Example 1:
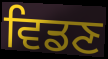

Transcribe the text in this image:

ਵਿਡਣ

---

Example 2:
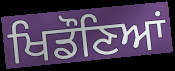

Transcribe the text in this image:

ਖਿਡੌਣਿਆਂ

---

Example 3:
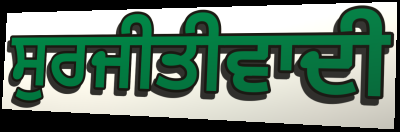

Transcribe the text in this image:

ਸੁਰਜੀਤੀਵਾਦੀ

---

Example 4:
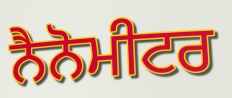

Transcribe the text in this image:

ਨੈਨੋਮੀਟਰ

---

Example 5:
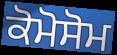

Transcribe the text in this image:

ਕੋਮੋਸੋਮ